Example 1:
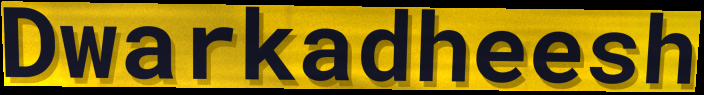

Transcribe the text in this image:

Dwarkadheesh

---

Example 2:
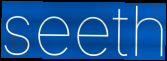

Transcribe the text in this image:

seeth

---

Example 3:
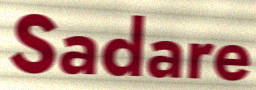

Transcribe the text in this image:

Sadare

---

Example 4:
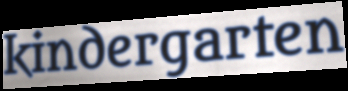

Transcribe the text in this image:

kindergarten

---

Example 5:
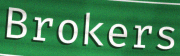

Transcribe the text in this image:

Brokers